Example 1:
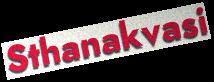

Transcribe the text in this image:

Sthanakvasi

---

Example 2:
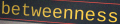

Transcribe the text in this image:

betweenness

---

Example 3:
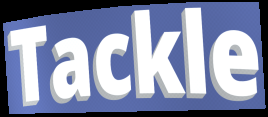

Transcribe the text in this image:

Tackle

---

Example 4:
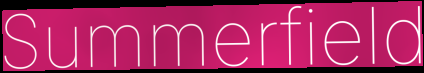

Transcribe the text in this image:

Summerfield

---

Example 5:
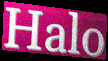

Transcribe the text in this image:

Halo